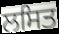
ਲਸਿਤ